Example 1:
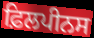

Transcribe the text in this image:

ਫ਼ਿਲਪੀਨਸ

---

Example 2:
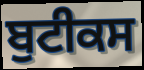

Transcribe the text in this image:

ਬੁਟੀਕਸ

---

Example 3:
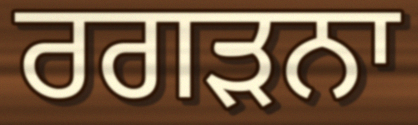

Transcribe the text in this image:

ਰਗੜਨਾ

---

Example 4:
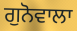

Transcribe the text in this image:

ਗੁਨੋਵਾਲਾ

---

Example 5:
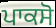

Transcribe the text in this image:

ਪਾਕਸੋ